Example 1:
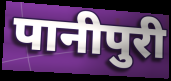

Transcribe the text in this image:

पानीपुरी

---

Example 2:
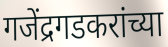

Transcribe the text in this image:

गजेंद्रगडकरांच्या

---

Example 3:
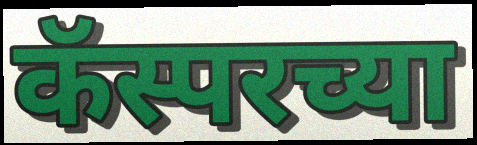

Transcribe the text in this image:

कॅस्परच्या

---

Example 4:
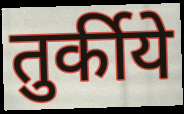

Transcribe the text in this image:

तुर्कीये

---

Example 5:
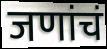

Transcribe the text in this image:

जणांचं